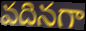
వదినగా